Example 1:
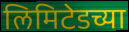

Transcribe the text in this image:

लिमिटेडच्या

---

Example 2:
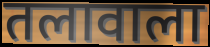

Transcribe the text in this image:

तलावाला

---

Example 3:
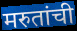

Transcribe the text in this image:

मरुतांची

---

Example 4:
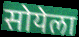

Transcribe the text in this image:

सोयेला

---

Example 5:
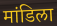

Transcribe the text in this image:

मांडिला